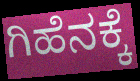
ಗಿಹೆನಕ್ಕೆ